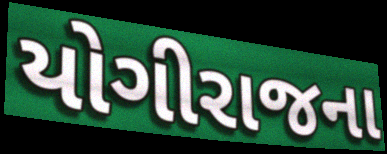
યોગીરાજના